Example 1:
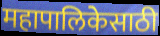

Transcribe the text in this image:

महापालिकेसाठी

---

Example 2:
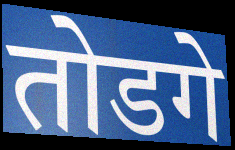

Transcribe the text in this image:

तोडगे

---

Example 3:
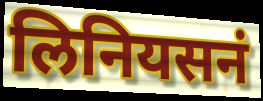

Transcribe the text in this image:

लिनियसनं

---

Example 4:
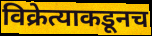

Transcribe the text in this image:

विक्रेत्याकडूनच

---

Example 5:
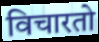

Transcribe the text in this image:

विचारतो